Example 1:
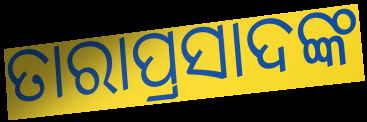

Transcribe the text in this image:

ତାରାପ୍ରସାଦଙ୍କ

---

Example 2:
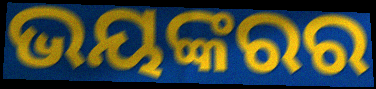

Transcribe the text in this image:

ଭୟଙ୍କରର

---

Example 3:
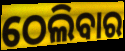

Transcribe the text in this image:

ଠେଲିବାର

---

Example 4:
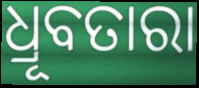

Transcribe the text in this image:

ଧ୍ରୂବତାରା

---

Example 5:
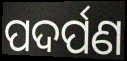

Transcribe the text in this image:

ପଦର୍ପଣ